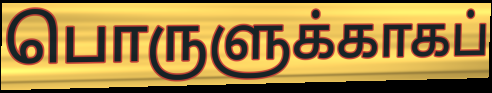
பொருளுக்காகப்